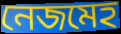
নেজমেহ